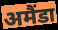
अमैंडा